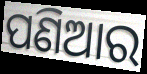
ପଣିଆର